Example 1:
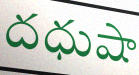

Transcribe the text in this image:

దధుషా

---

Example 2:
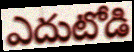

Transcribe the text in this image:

ఎదుటోడి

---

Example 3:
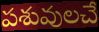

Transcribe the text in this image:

పశువులచే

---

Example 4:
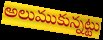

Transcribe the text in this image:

అలుముకున్నట్టు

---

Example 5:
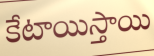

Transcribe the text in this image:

కేటాయిస్తాయి